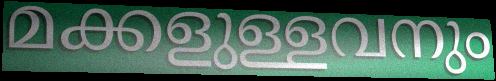
മക്കളുള്ളവനും